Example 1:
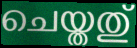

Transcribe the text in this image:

ചെയ്തതു്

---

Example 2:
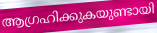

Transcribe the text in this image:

ആഗ്രഹിക്കുകയുണ്ടായി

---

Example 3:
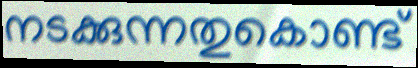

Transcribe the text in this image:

നടക്കുന്നതുകൊണ്ട്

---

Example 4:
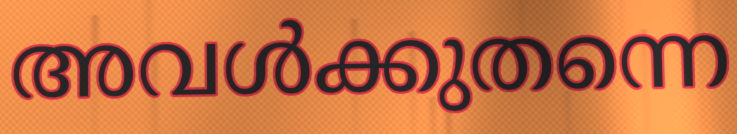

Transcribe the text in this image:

അവൾക്കുതന്നെ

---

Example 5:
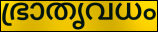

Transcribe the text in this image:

ഭ്രാതൃവധം